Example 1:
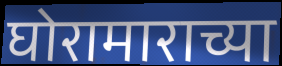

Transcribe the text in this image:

घोरामाराच्या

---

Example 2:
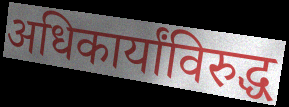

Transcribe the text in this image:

अधिकार्यांविरुद्ध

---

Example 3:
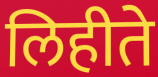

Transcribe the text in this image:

लिहीते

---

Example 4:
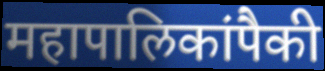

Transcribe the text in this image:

महापालिकांपैकी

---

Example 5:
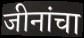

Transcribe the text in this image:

जीनांचा